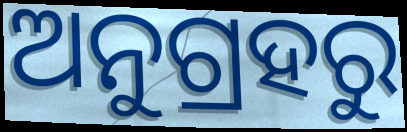
ଅନୁଗ୍ରହରୁ